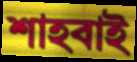
শাহবাই